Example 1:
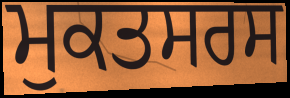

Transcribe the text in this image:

ਮੁਕਤਸਰਸ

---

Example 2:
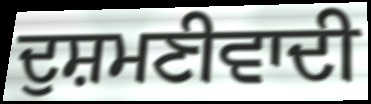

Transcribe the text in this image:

ਦੁਸ਼ਮਣੀਵਾਦੀ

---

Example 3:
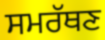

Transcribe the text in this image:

ਸਮਰੱਥਣ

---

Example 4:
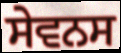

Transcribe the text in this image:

ਸੇਵਨਸ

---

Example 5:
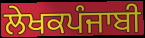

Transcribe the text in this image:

ਲੇਖਕਪੰਜਾਬੀ